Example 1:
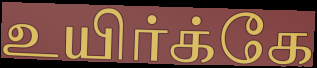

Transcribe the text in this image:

உயிர்க்கே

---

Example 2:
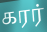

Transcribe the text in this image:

கரர்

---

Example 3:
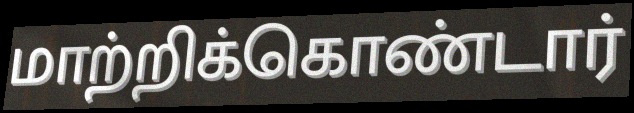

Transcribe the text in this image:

மாற்றிக்கொண்டார்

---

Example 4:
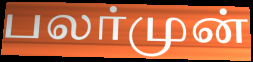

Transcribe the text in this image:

பலர்முன்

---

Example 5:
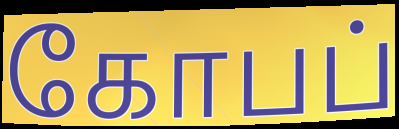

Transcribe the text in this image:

கோபப்